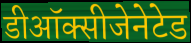
डीऑक्सीजेनेटेड